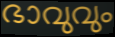
ഭാവുവും